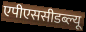
एपीएससीडब्ल्यू